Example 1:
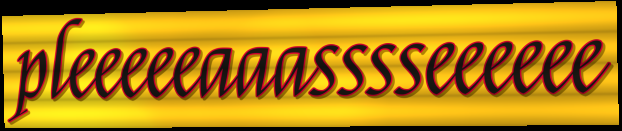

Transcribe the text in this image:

pleeeeeaaasssseeeeee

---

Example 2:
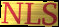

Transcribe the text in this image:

NLS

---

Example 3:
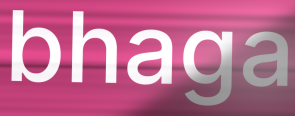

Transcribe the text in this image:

bhaga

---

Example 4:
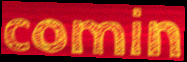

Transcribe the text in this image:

comin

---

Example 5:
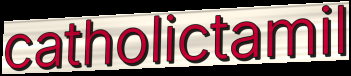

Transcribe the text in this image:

catholictamil